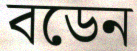
বডেন